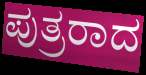
ಪುತ್ರರಾದ